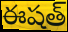
ఈషత్